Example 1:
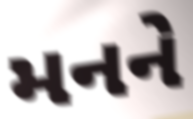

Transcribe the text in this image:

મનને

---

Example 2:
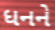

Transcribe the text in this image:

ધનને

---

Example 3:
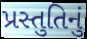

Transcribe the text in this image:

પ્રસ્તુતિનું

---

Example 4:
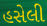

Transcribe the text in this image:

હસેલી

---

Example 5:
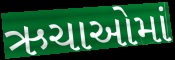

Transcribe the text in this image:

ઋચાઓમાં